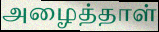
அழைத்தாள்